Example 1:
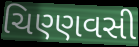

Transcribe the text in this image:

ચિણ્ણવસી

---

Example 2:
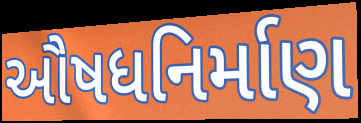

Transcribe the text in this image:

ઔષધનિર્માણ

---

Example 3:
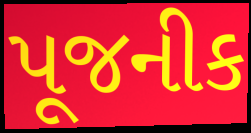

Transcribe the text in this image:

પૂજનીક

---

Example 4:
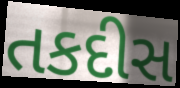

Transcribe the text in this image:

તકદીસ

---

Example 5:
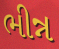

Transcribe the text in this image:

ભીન્ન